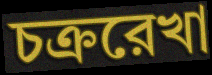
চক্ররেখা